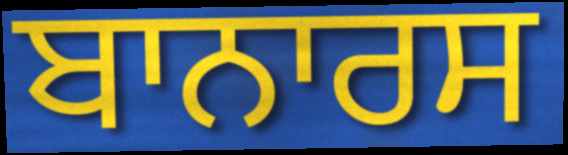
ਬਾਨਾਰਸ